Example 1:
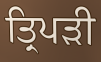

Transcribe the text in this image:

ਤ੍ਰਿਪਡ਼ੀ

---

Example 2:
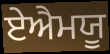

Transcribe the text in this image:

ਏਐਮਯੂ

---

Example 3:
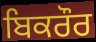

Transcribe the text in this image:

ਬਿਕਰੌਰ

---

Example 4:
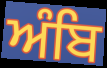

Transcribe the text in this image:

ਅੰਬਿ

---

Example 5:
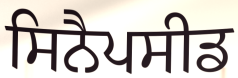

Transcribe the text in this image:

ਸਿਨੈਪਸੀਡ